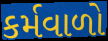
કર્મવાળો